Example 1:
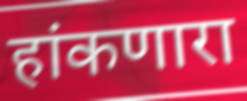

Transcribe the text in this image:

हांकणारा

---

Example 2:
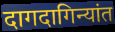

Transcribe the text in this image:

दागदागिन्यांत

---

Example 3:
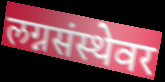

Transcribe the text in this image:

लग्नसंस्थेवर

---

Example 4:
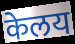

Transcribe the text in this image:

केलय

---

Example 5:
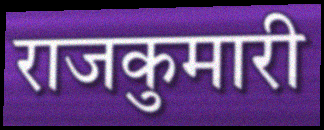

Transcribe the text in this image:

राजकुमारी